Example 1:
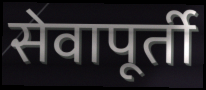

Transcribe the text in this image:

सेवापूर्ती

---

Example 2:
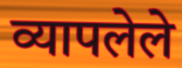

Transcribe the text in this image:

व्यापलेले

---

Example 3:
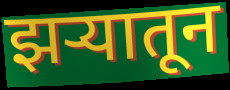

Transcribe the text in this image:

झऱ्यातून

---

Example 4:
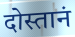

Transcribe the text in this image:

दोस्तानं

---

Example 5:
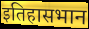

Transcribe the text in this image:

इतिहासभान